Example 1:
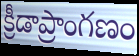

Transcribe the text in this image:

క్రీడాప్రాంగణం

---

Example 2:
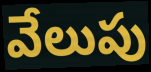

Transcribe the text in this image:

వేలుపు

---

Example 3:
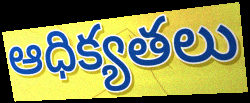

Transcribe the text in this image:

ఆధిక్యతలు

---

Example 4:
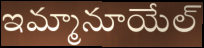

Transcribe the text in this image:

ఇమ్మానూయేల్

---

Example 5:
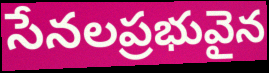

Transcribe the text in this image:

సేనలప్రభువైన